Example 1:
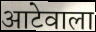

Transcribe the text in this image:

आटेवाला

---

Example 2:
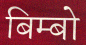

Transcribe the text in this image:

बिम्बो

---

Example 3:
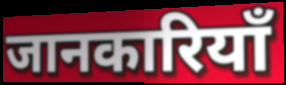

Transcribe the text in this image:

जानकारियाँ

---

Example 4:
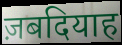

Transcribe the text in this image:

ज़बदियाह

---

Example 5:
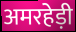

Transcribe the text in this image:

अमरहेड़ी